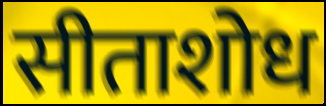
सीताशोध